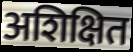
अशिक्षित